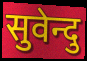
सुवेन्दु